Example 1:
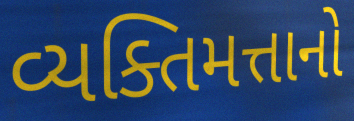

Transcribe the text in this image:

વ્યક્તિમત્તાનો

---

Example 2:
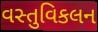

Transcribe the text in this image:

વસ્તુવિકલન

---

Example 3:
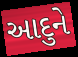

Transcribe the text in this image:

આદુને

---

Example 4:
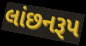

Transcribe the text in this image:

લાંછનરૂપ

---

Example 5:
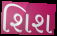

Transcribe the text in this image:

શિશ